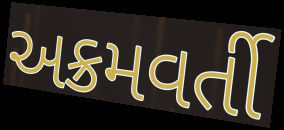
અક્રમવર્તી